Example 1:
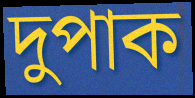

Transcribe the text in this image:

দুপাক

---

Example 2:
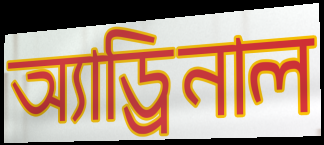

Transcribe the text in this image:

অ্যাড্রিনাল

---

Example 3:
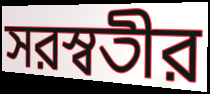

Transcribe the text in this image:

সরস্বতীর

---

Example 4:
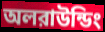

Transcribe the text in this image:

অলরাউন্ডিং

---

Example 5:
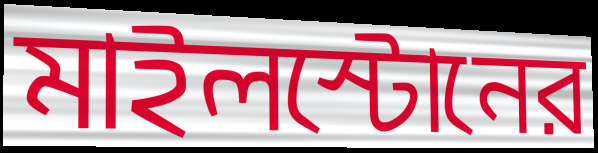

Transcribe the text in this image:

মাইলস্টোনের